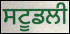
ਸਟੂਡਲੀ